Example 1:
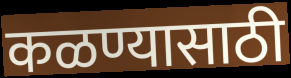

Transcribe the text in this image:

कळण्यासाठी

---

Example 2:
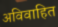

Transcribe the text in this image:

अविवाहित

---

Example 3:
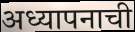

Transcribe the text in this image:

अध्यापनाची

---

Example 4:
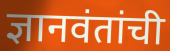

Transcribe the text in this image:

ज्ञानवंतांची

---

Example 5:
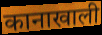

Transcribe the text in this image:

कानाखाली